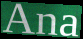
Ana